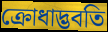
ক্রোধাদ্ভবতি